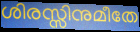
ശിരസ്സിനുമീതേ